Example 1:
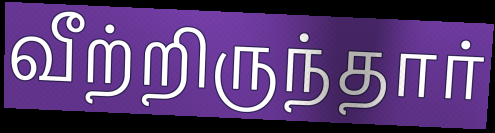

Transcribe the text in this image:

வீற்றிருந்தார்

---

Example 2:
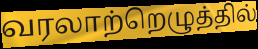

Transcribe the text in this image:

வரலாற்றெழுத்தில்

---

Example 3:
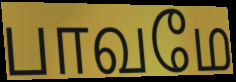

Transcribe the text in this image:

பாவமே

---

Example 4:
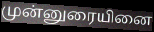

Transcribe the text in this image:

முன்னுரையினை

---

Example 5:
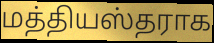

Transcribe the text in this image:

மத்தியஸ்தராக